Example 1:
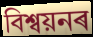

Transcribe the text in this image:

বিশ্বয়নৰ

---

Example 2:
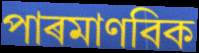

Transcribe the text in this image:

পাৰমাণবিক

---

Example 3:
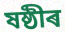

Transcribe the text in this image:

ষষ্ঠীৰ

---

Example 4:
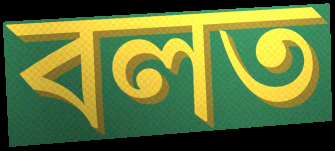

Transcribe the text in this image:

বলত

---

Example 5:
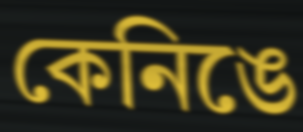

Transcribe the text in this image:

কেনিঙে